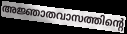
അജ്ഞാതവാസത്തിന്റെ